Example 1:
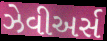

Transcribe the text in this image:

ઝેવીઅર્સ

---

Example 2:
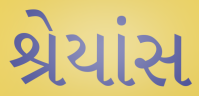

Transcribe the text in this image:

શ્રેયાંસ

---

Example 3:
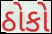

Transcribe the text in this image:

ઠોકો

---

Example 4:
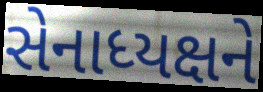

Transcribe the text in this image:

સેનાધ્યક્ષને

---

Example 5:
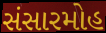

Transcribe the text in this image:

સંસારમોહ